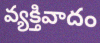
వ్యక్తివాదం